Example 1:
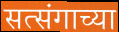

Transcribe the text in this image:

सत्संगाच्या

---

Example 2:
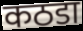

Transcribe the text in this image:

कठडा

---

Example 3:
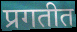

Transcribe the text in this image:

प्रगतीत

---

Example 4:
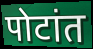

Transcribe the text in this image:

पोटांत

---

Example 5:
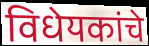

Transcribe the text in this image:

विधेयकांचे